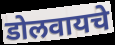
डोलवायचे